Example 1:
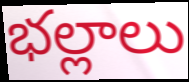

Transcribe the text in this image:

భల్లాలు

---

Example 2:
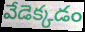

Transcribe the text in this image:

వేడెక్కడం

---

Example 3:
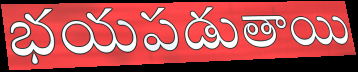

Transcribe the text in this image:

భయపడుతాయి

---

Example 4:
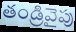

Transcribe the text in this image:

తండ్రివైపు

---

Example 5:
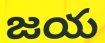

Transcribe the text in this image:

జయ